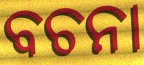
ବଚନା